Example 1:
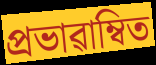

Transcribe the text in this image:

প্ৰভাৱাম্বিত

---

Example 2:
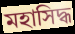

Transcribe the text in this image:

মহাসিদ্ধ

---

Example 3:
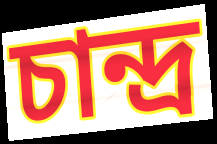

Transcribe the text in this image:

চান্দ্ৰ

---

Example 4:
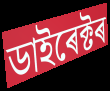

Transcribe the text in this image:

ডাইৰেক্টৰ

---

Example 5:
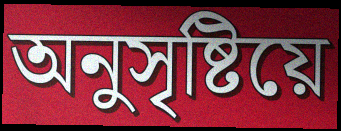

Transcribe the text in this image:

অনুসৃষ্টিয়ে